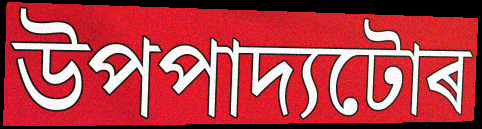
উপপাদ্যটোৰ